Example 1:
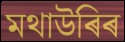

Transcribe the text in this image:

মথাউৰিৰ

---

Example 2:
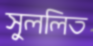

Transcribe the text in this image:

সুললিত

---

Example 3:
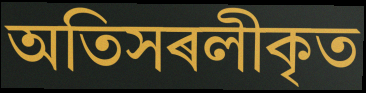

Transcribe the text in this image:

অতিসৰলীকৃত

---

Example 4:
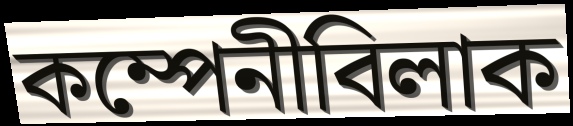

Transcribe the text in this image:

কম্পেনীবিলাক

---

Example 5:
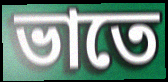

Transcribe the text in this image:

ভাতে